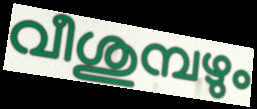
വീശുമ്പഴും